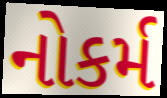
નોકર્મ